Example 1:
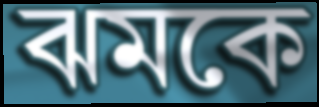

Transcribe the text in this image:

ঝমকে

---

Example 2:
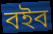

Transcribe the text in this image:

বইব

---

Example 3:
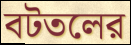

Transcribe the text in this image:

বটতলের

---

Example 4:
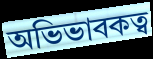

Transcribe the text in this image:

অভিভাবকত্ব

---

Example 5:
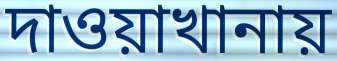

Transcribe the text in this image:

দাওয়াখানায়